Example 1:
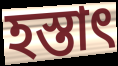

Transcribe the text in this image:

হস্তাৎ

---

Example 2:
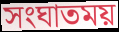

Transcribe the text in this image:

সংঘাতময়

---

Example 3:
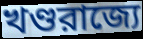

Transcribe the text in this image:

খণ্ডরাজ্যে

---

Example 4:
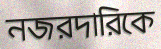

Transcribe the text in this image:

নজরদারিকে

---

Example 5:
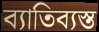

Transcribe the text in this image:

ব্যাতিব্যস্ত